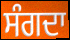
ਸੰਗਦਾ